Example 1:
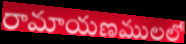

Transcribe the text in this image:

రామాయణములలో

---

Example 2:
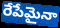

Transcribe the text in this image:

రేపేమైనా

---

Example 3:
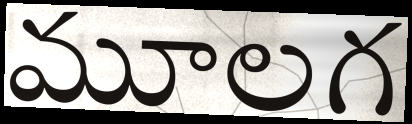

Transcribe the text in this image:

మూలగ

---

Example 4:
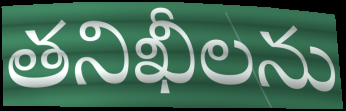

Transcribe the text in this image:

తనిఖీలను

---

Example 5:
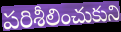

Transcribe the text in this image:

పరిశీలించుకుని